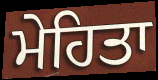
ਮੇਹਿਤਾ